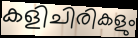
കളിചിരികളും